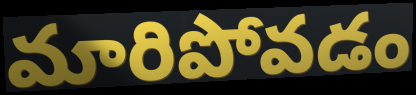
మారిపోవడం